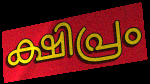
ക്ഷിപ്രം